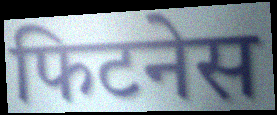
फिटनेस